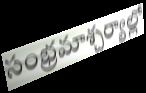
సంభ్రమాశ్చర్యాల్లో